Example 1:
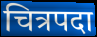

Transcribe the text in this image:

चित्रपदा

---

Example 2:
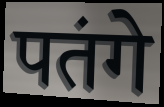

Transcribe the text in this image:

पतंगे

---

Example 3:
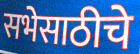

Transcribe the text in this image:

सभेसाठीचे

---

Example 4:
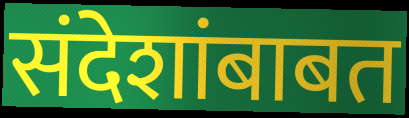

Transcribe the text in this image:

संदेशांबाबत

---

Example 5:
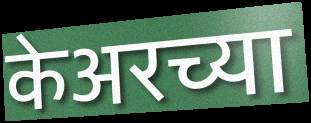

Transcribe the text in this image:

केअरच्या